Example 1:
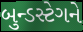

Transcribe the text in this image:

બુન્ડસ્ટેગને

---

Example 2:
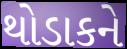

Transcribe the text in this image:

થોડાકને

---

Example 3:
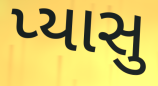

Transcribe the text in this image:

પ્યાસુ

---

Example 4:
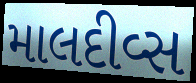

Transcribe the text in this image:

માલદીવ્સ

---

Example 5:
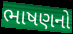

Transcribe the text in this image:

ભાષણનો